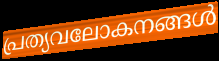
പ്രത്യവലോകനങ്ങൾ